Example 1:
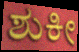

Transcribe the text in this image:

ಶುಕೀ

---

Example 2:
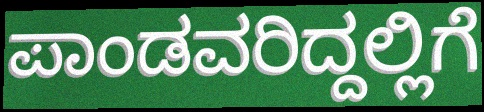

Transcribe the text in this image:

ಪಾಂಡವರಿದ್ದಲ್ಲಿಗೆ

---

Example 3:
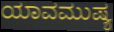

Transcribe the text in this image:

ಯಾವಮುಷ್ಯ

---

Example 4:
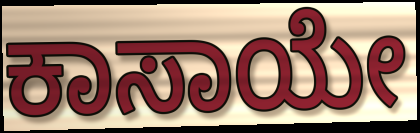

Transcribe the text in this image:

ಕಾಸಾಯೇ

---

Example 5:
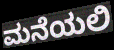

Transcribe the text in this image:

ಮನೆಯಲಿ